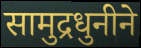
सामुद्रधुनीने